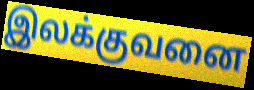
இலக்குவனை